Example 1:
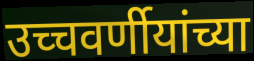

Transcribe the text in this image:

उच्चवर्णीयांच्या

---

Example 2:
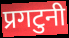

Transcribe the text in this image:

प्रगटुनी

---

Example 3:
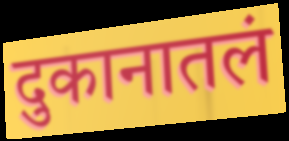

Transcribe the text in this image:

दुकानातलं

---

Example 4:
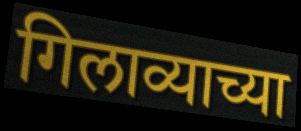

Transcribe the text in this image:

गिलाव्याच्या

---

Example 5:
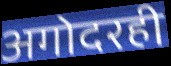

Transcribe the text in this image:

अगोदरही